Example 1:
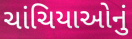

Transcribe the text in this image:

ચાંચિયાઓનું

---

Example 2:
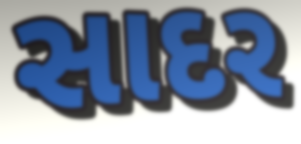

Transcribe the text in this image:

સાદર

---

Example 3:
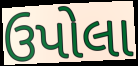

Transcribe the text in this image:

ઉપોલા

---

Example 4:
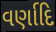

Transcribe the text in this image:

વર્ણાદિ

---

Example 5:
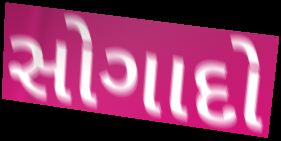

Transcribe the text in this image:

સોગાદો